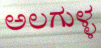
ಅಲಗುಳ್ಳ